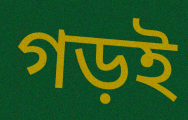
গড়ই